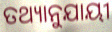
ତଥ୍ୟାନୁଯାୟୀ